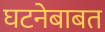
घटनेबाबत